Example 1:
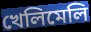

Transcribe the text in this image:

খেলিমেলি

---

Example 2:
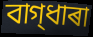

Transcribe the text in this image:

বাগ্‌ধাৰা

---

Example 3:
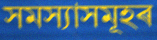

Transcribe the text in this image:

সমস্যাসমূহৰ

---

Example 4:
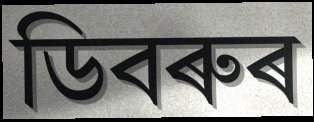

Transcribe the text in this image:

ডিবৰুৰ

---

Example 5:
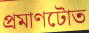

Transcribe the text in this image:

প্ৰমাণটোত